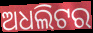
ଅଧଲିଟର